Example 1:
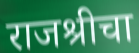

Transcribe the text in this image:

राजश्रीचा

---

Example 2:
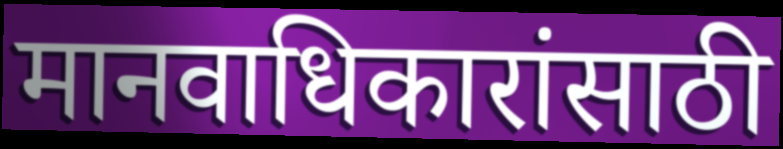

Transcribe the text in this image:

मानवाधिकारांसाठी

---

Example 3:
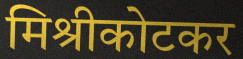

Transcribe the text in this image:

मिश्रीकोटकर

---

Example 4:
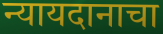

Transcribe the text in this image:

न्यायदानाचा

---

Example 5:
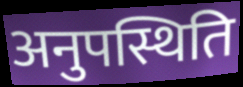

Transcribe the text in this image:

अनुपस्थिति